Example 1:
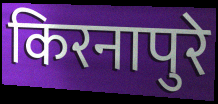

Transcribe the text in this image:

किरनापुरे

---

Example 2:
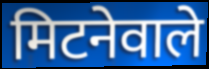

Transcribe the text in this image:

मिटनेवाले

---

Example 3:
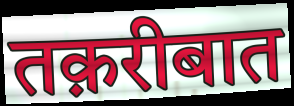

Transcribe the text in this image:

तक़रीबात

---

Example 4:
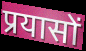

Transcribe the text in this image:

प्रयासों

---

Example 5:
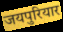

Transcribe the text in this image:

जयपुरियार